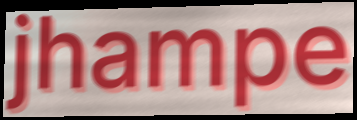
jhampe